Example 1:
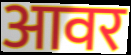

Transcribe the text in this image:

आवर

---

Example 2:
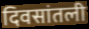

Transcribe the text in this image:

दिवसांतली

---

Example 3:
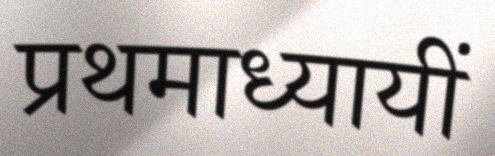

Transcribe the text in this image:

प्रथमाध्यायीं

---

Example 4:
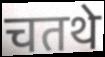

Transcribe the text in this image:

चतथे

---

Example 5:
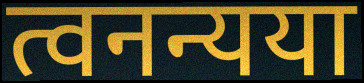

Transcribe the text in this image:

त्वनन्यया